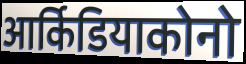
आर्किडियाकोनो